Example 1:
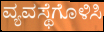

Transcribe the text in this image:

ವ್ಯವಸ್ಥೆಗೊಳಿಸಿ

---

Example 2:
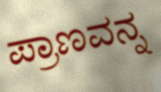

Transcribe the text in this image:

ಪ್ರಾಣವನ್ನ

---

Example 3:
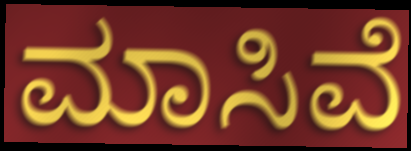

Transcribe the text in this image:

ಮಾಸಿವೆ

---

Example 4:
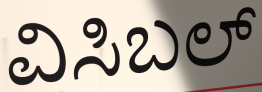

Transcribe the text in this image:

ವಿಸಿಬಲ್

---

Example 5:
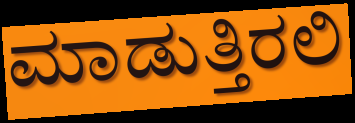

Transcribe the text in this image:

ಮಾಡುತ್ತಿರಲಿ